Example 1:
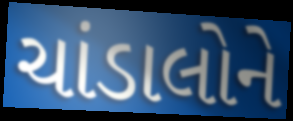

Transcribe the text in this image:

ચાંડાલોને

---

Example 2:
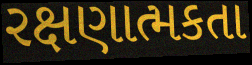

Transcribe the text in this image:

રક્ષણાત્મકતા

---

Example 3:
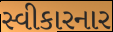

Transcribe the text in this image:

સ્વીકારનાર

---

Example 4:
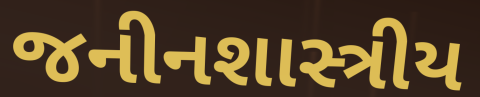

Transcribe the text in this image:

જનીનશાસ્ત્રીય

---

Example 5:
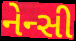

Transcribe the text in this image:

નેન્સી